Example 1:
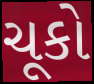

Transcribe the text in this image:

ચૂકો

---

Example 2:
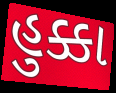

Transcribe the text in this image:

હુક્કા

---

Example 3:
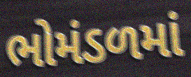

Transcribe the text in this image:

ભોમંડળમાં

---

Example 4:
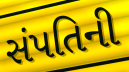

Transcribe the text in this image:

સંપતિની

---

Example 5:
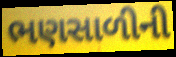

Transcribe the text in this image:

ભણસાળીની